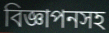
বিজ্ঞাপনসহ